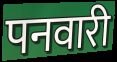
पनवारी